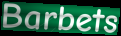
Barbets